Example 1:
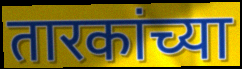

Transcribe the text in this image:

तारकांच्या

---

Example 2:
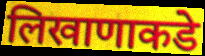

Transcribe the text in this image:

लिखाणाकडे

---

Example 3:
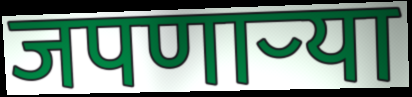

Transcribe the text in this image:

जपणाऱ्या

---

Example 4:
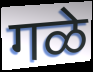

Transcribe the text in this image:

गळे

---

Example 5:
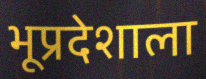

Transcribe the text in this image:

भूप्रदेशाला